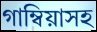
গাম্বিয়াসহ